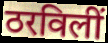
ठरविलीं